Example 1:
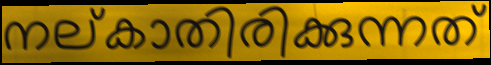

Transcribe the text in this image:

നല്കാതിരിക്കുന്നത്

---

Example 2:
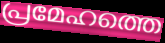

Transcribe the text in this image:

പ്രമേഹത്തെ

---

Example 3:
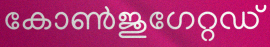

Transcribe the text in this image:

കോൺജുഗേറ്റഡ്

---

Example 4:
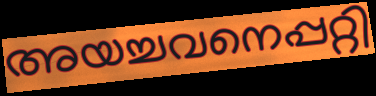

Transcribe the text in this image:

അയച്ചവനെപ്പറ്റി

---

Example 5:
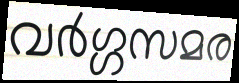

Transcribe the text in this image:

വർഗ്ഗസമര